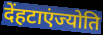
देंहटाएंज्योति